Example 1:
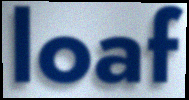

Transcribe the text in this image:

loaf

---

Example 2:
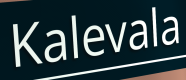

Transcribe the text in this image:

Kalevala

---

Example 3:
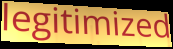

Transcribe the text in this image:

legitimized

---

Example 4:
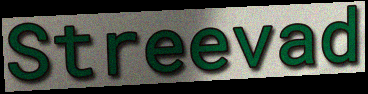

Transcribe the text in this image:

Streevad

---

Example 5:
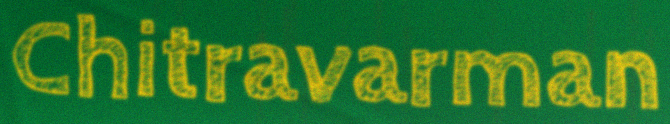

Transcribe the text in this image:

Chitravarman